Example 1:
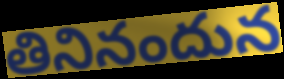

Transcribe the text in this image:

తినినందున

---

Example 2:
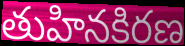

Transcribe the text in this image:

తుహినకిరణ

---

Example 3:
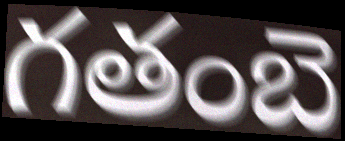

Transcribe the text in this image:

గతంబె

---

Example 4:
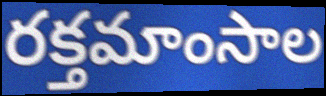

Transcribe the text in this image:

రక్తమాంసాల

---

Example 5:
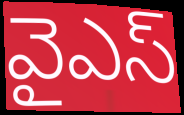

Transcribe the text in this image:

వైఎస్